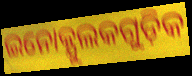
ଇନୋକ୍ଯୁଲକଗୁଡ଼ିକ